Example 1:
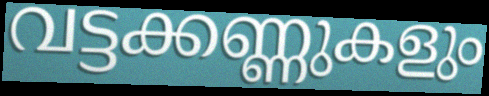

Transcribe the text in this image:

വട്ടക്കണ്ണുകളും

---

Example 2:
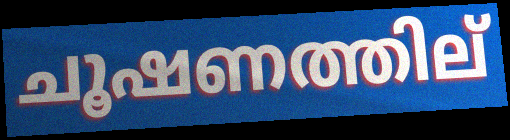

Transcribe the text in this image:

ചൂഷണത്തില്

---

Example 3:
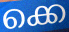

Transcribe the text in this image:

ക്കെ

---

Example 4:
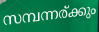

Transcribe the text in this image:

സമ്പന്നര്ക്കും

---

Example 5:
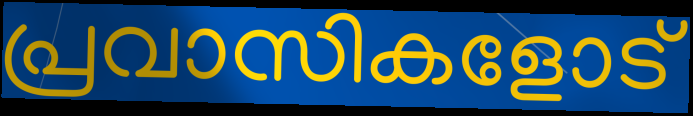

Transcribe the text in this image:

പ്രവാസികളോട്